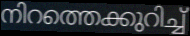
നിറത്തെക്കുറിച്ച്